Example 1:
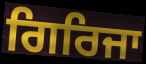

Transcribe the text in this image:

ਗਿਰਿਜਾ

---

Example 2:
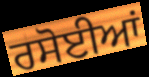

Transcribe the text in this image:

ਰਸੋਈਆਂ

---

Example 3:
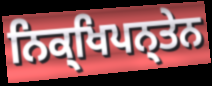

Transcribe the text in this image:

ਨਿਕ੍ਖਿਪਨ੍ਤੇਨ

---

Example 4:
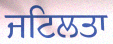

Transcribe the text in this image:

ਜਟਿਲਤਾ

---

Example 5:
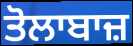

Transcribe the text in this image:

ਤੋਲਾਬਾਜ਼